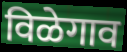
विळेगाव